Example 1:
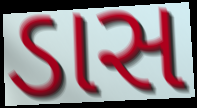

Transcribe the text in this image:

ડાસ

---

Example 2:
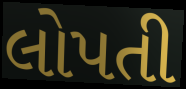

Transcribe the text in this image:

લોપતી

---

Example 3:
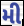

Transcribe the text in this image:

મી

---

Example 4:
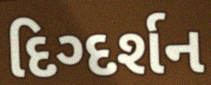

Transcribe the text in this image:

દિગ્દર્શન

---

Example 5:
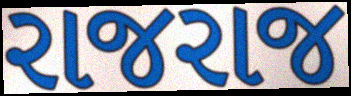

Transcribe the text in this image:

રાજરાજ